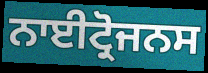
ਨਾਈਟ੍ਰੋਜਨਸ